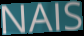
NAIS